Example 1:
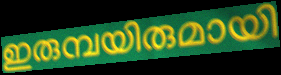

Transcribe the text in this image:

ഇരുമ്പയിരുമായി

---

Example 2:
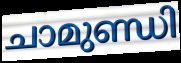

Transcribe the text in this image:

ചാമുണ്ഡി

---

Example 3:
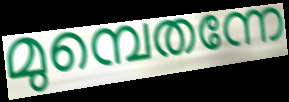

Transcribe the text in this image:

മുമ്പെതന്നേ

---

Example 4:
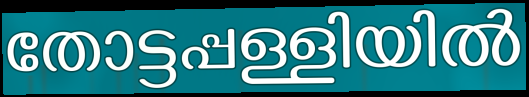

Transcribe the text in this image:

തോട്ടപ്പള്ളിയിൽ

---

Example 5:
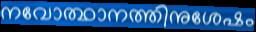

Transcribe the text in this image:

നവോത്ഥാനത്തിനുശേഷം